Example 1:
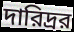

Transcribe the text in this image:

দারিদ্রর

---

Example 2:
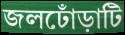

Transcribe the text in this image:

জলঢোঁড়াটি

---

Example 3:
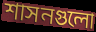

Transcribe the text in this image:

শাসনগুলো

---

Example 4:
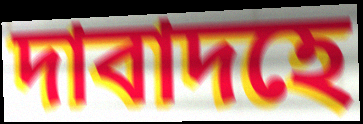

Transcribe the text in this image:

দাবাদহে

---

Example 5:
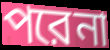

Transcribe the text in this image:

পরেনা